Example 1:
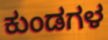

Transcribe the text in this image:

ಕುಂಡಗಳ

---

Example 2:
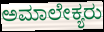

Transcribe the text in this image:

ಅಮಾಲೇಕ್ಯರು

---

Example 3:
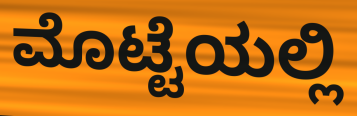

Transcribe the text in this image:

ಮೊಟ್ಟೆಯಲ್ಲಿ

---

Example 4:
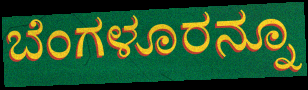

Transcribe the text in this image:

ಬೆಂಗಳೂರನ್ನೂ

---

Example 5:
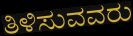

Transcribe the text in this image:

ತಿಳಿಸುವವರು